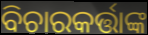
ବିଚାରକର୍ତ୍ତାଙ୍କ